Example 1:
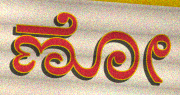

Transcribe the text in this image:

ಣೋ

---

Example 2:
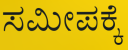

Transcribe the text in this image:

ಸಮೀಪಕ್ಕೆ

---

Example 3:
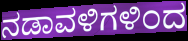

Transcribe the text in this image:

ನಡಾವಳಿಗಳಿಂದ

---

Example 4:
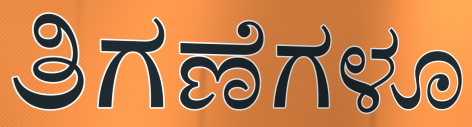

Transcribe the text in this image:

ತಿಗಣೆಗಳೂ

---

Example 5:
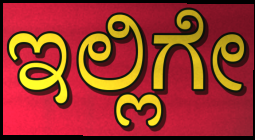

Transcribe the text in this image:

ಇಲ್ಲಿಗೇ